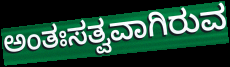
ಅಂತಃಸತ್ವವಾಗಿರುವ